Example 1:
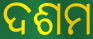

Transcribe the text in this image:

ଦଶମ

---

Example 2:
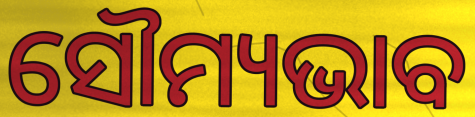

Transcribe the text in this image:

ସୌମ୍ୟଭାବ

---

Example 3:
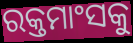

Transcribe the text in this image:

ରକ୍ତମାଂସକୁ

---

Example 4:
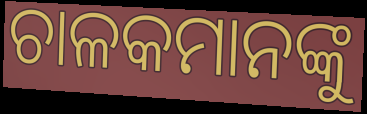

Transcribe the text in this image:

ଚାଳକମାନଙ୍କୁ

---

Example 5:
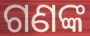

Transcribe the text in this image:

ଗଣଙ୍କ